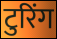
टुरिंग